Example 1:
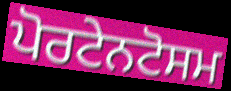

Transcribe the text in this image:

ਪੋਰਟੇਨਟੋਸਮ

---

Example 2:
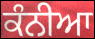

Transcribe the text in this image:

ਕੰਨੀਆ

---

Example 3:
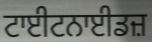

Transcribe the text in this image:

ਟਾਈਟਨਾਈਡਜ਼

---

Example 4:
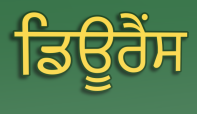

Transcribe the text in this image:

ਡਿਊਰੈਂਸ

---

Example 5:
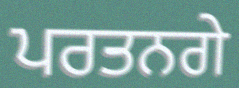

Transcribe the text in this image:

ਪਰਤਨਗੇ